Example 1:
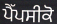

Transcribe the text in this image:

ਪੈੱਪਸੀਕੋ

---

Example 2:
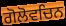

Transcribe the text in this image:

ਗੋਲੋਵਚਿਨ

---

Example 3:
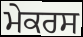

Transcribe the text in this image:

ਮੇਕਰਸ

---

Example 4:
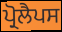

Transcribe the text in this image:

ਪ੍ਰੋਲੈਪਸ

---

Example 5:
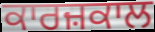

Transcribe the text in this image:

ਕਾਰਜ਼ਕਾਲ